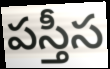
పస్తీస